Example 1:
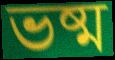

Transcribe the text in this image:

ভষ্ম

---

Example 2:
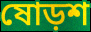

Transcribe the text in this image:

ষোড়শ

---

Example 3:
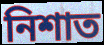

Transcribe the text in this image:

নিশাত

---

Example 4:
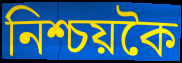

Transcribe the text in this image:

নিশ্চয়কৈ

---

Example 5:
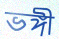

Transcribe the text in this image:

ভঙ্গী